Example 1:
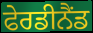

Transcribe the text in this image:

ਫੇਰਡੀਨੈਂਡ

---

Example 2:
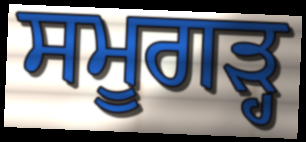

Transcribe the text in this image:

ਸਮੂਗੜ੍ਹ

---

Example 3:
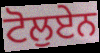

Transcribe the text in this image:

ਟੋਲੁਏਨ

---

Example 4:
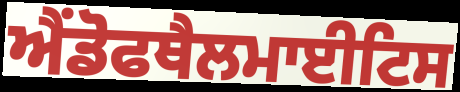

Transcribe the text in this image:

ਐਂਡੋਫਥੈਲਮਾਈਟਿਸ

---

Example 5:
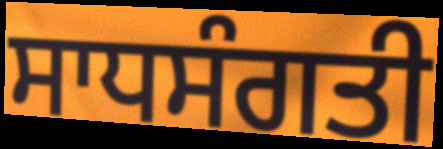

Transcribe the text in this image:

ਸਾਧਸੰਗਤੀ